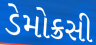
ડેમોક્રસી